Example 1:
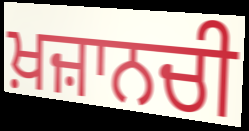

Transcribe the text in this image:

ਖ਼ਜ਼ਾਨਚੀ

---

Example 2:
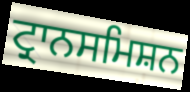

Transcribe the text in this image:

ਟ੍ਰਾਨਸਮਿਸ਼ਨ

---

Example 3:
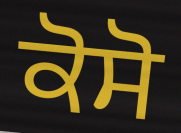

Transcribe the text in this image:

ਕੋਸੋ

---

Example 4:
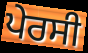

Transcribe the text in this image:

ਪੇਰਸੀ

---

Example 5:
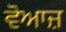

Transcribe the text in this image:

ਵੋਆਜ਼